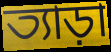
ত্যাড়া